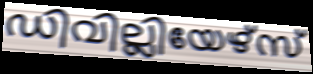
ഡിവില്ലിയേഴ്സ്